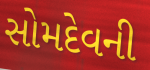
સોમદેવની